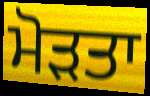
ਮੋੜਤਾ